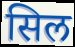
सिल